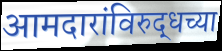
आमदारांविरुद्धच्या